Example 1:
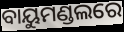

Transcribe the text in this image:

ବାୟୁମଣ୍ଡଲରେ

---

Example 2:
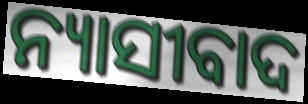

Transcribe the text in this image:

ନ୍ୟାସୀବାଦ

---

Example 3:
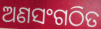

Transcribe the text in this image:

ଅଣସଂଗଠିତ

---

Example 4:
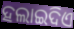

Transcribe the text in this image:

ହଲାଇଦିଏ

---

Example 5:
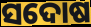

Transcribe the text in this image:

ସଦୋଷ